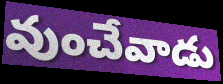
వుంచేవాడు